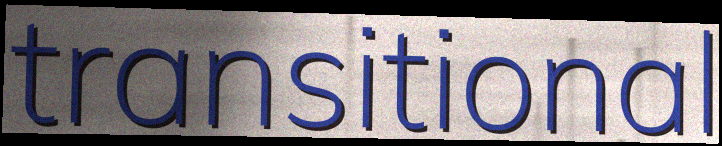
transitional